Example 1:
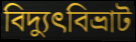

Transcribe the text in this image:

বিদ্যুৎবিভ্রাট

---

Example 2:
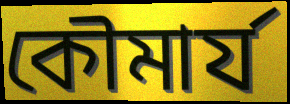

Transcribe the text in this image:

কৌমার্য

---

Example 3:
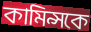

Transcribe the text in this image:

কামিন্সকে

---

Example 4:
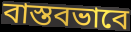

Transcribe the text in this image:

বাস্তবভাবে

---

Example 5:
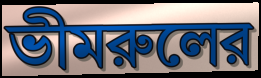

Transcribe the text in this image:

ভীমরুলের